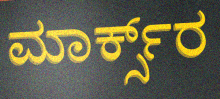
ಮಾರ್ಕ್ಸ್‌ರ